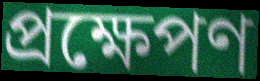
প্রক্ষেপণ